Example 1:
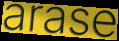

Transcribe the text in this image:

arase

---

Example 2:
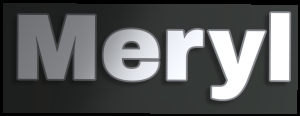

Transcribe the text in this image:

Meryl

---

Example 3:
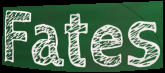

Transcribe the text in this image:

Fates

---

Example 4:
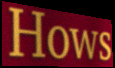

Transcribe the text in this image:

Hows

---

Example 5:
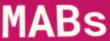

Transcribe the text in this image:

MABs